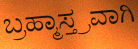
ಬ್ರಹ್ಮಾಸ್ತ್ರವಾಗಿ